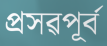
প্ৰসৱপূৰ্ব